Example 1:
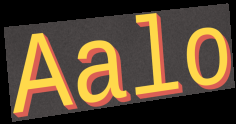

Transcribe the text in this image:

Aalo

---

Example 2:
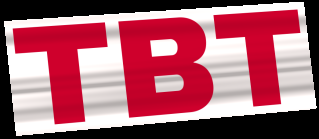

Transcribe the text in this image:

TBT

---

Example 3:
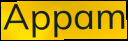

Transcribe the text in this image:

Appam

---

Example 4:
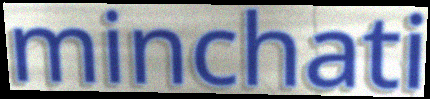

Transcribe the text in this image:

minchati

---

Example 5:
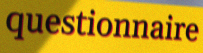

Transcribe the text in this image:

questionnaire